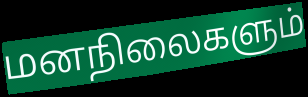
மனநிலைகளும்